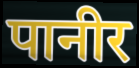
पानीर